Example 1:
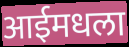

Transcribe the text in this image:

आईमधला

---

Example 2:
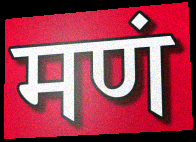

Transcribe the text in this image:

मणं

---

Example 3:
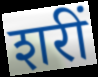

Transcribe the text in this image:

शरीं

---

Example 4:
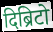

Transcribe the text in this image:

दिब्रिटो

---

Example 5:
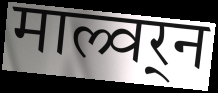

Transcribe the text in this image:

माल्वर्न